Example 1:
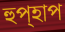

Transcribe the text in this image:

হুপ্হাপ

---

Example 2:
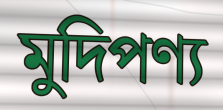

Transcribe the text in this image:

মুদিপণ্য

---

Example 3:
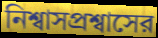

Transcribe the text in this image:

নিশ্বাসপ্রশ্বাসের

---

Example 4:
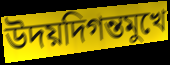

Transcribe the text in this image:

উদয়দিগন্তমুখে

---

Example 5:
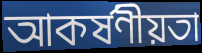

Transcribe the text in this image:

আকর্ষণীয়তা